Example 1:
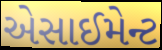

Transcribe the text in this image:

એસાઈમેન્ટ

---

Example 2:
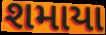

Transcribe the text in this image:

શમાયા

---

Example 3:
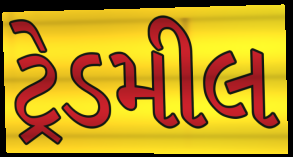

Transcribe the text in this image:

ટ્રેડમીલ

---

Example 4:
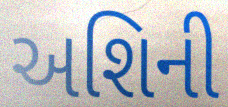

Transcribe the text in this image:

અશિની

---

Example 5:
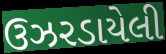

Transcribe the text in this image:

ઉઝરડાયેલી